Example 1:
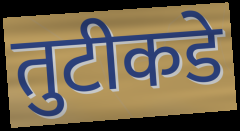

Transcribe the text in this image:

तुटीकडे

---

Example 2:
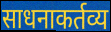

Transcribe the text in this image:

साधनाकर्तव्य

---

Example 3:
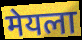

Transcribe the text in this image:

मेयला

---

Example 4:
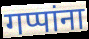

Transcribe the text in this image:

गप्पांना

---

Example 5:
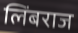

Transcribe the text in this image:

लिंबराज